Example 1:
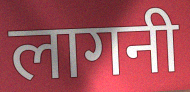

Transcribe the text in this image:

लागनी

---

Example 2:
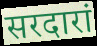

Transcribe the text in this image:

सरदारां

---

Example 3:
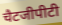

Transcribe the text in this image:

चैटजीपीटी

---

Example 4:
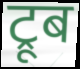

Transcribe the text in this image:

ट्रूब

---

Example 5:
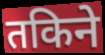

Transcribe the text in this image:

तकिने